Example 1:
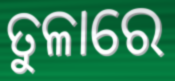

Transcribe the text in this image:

ତୁଳାରେ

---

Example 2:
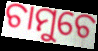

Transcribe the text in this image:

ଚାମୁଚେ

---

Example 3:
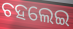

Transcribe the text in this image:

ଚହଲେଇ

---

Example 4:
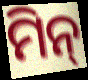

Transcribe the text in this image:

ମିନ୍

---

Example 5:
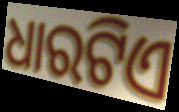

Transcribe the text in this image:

ଧାରଟିଏ